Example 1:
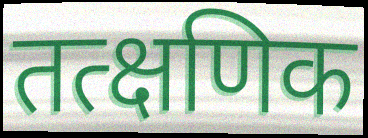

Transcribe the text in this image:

तत्क्षणिक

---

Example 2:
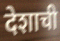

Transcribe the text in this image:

देशाची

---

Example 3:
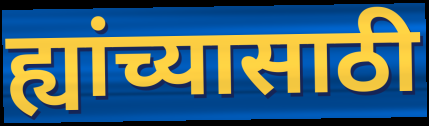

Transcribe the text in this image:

ह्यांच्यासाठी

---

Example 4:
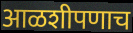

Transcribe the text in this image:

आळशीपणाच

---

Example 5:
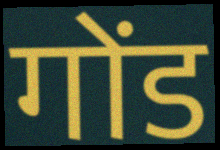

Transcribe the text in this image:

गोंड